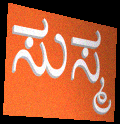
ಸುಸ್ಮ